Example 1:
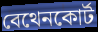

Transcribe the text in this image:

বেথেনকোর্ট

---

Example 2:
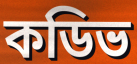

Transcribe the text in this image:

কডিভ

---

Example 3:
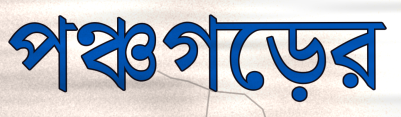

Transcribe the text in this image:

পঞ্চগড়ের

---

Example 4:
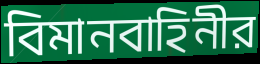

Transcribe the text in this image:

বিমানবাহিনীর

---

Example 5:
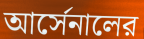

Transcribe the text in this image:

আর্সেনালের